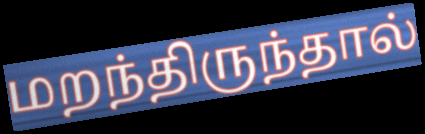
மறந்திருந்தால்